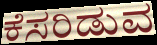
ಕೆಸರಿಡುವ